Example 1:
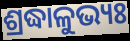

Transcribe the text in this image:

ଶ୍ରଦ୍ଧାଳୁଭ୍ୟଃ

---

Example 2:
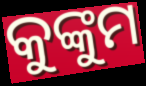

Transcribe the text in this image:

କୁଙ୍କୁମ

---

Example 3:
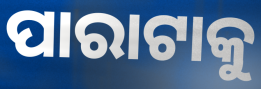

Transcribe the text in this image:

ପାରାଟାକୁ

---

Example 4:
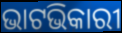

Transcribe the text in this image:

ଭାଟଭିକାରୀ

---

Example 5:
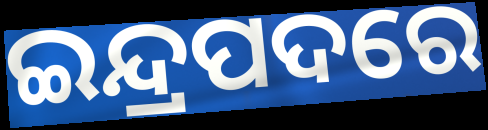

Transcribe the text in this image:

ଇନ୍ଦ୍ରପଦରେ